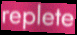
replete